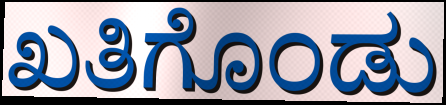
ಖತಿಗೊಂಡು